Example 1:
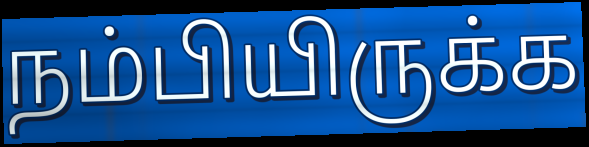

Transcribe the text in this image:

நம்பியிருக்க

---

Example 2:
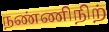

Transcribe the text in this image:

நண்ணிநிற்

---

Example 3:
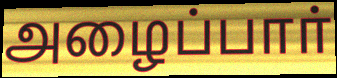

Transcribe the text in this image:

அழைப்பார்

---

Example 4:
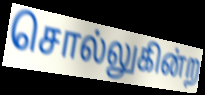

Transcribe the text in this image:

சொல்லுகின்ற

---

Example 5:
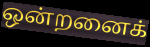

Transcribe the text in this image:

ஒன்றனைக்